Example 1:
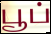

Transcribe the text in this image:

பூப்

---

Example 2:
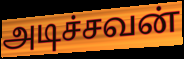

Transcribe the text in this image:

அடிச்சவன்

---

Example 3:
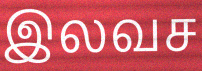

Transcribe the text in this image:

இலவச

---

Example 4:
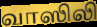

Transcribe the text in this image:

வாஸிலி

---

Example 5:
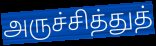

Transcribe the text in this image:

அருச்சித்துத்